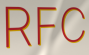
RFC